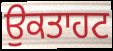
ਉਕਤਾਹਟ